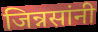
जिन्नसांनी